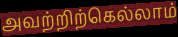
அவற்றிற்கெல்லாம்